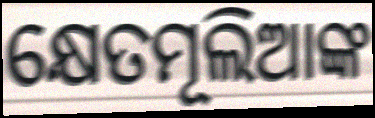
କ୍ଷେତମୂଲିଆଙ୍କ